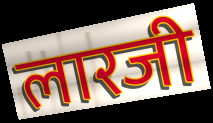
लारजी